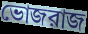
ভোজরাজ